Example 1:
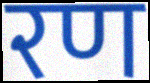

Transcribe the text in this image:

रण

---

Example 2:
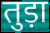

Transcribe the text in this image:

तुड़ा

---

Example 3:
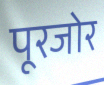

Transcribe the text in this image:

पूरजोर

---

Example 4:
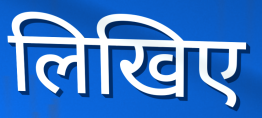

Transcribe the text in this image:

लिखिए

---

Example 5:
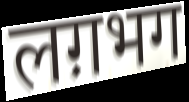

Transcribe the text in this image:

लग़भग